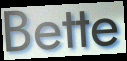
Bette